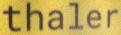
thaler